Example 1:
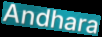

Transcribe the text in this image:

Andhara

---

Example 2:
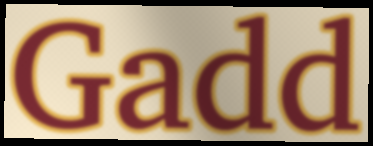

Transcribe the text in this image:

Gadd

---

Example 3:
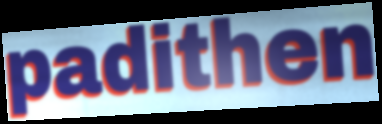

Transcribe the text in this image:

padithen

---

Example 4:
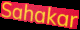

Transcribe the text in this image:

Sahakar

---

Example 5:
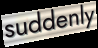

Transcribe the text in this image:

suddenly